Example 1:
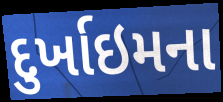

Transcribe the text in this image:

દુર્ખાઇમના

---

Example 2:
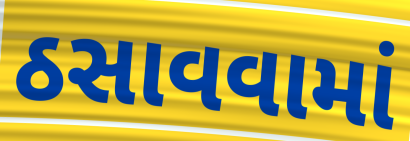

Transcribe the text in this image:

ઠસાવવામાં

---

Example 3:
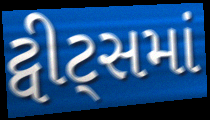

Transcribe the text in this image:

ટ્વીટ્સમાં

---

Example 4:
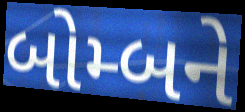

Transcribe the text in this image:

બોમ્બને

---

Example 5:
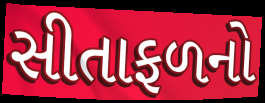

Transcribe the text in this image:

સીતાફળનો